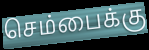
செம்பைக்கு